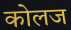
कोलज